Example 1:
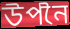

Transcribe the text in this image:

উপনৈ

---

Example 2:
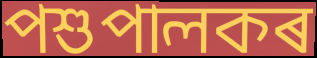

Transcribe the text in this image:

পশুপালকৰ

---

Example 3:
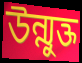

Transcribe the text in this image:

উন্মুক্ত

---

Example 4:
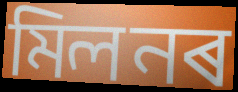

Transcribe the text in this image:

মিলনৰ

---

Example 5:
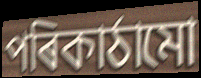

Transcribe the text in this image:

পৰিকাঠামো